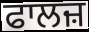
ਫਾਲਜ਼